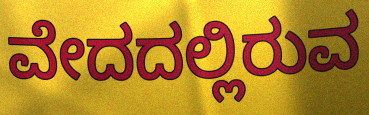
ವೇದದಲ್ಲಿರುವ